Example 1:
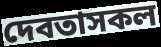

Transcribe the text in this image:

দেবতাসকল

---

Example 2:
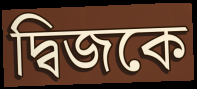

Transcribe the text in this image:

দ্বিজকে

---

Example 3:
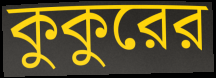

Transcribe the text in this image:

কুকুরের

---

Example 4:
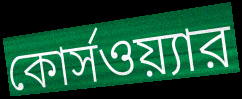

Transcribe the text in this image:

কোর্সওয়্যার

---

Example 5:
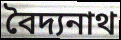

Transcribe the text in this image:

বৈদ্যনাথ